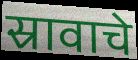
स्रावाचे